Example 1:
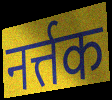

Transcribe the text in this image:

नर्त्तक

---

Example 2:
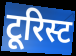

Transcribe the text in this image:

टूरिस्ट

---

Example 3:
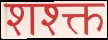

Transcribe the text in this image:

शश्क्त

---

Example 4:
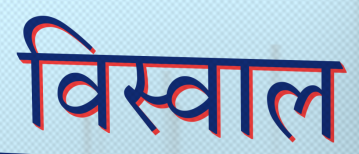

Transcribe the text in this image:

विस्वाल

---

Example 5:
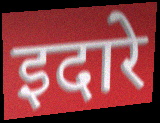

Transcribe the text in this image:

इदारे